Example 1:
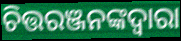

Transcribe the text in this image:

ଚିତ୍ତରଞ୍ଜନଙ୍କଦ୍ଵାରା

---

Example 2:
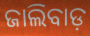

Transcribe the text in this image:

ଜାଲିବାଡ଼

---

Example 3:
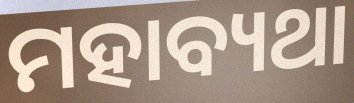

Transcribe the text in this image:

ମହାବ୍ୟଥା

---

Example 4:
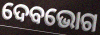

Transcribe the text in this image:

ଦେବଭୋଗ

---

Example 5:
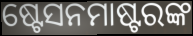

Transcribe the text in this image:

ଷ୍ଟେସନମାଷ୍ଟରଙ୍କ